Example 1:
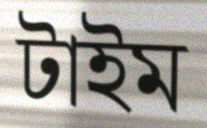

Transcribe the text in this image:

টাইম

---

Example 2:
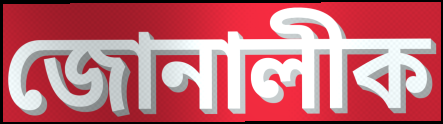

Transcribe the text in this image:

জোনালীক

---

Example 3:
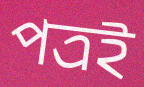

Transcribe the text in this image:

পত্ৰই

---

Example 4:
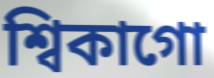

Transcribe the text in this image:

শ্বিকাগো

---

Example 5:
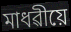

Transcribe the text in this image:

মাধৱীয়ে